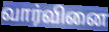
வார்வினை